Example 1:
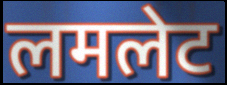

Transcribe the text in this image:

लमलेट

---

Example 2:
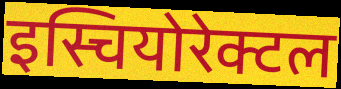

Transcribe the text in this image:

इस्चियोरेक्टल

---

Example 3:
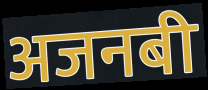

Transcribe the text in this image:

अजनबी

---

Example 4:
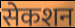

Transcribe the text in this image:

सेकशन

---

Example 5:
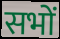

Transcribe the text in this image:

सभों